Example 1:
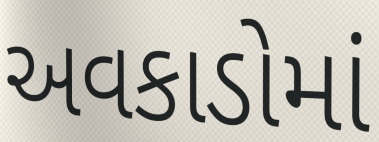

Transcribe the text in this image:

અવકાડોમાં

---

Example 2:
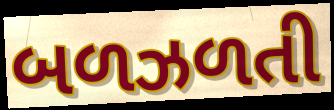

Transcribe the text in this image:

બળઝળતી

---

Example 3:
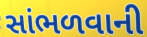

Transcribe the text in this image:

સાંભળવાની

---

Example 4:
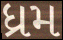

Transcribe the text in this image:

ધ્રમ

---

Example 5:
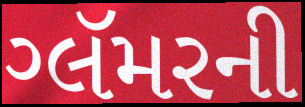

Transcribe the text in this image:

ગ્લૅમરની